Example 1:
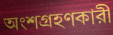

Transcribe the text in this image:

অংশগ্রহণকারী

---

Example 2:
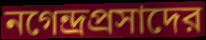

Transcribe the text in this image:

নগেন্দ্রপ্রসাদের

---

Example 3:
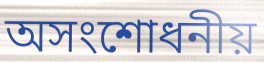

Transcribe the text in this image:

অসংশোধনীয়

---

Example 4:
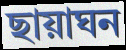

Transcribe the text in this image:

ছায়াঘন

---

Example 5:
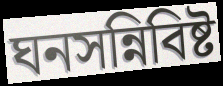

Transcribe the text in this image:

ঘনসন্নিবিষ্ট